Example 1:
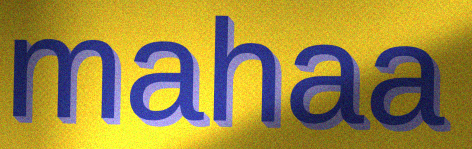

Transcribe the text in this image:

mahaa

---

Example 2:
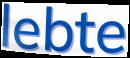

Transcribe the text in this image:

lebte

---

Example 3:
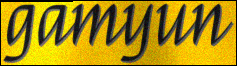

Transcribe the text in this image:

gamyun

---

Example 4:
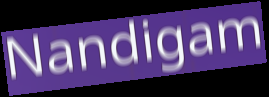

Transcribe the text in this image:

Nandigam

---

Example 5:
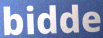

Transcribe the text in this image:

bidde